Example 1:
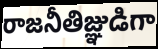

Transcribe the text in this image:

రాజనీతిజ్ఞుడిగా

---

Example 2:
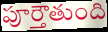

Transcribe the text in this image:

పూర్తౌతుంది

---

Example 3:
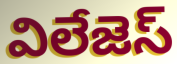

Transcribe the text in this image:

విలేజెస్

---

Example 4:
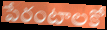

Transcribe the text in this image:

పేరంటాలకో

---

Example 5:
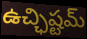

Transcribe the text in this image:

ఉచ్ఛిష్టమ్